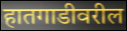
हातगाडीवरील